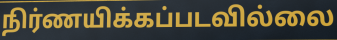
நிர்ணயிக்கப்படவில்லை